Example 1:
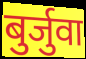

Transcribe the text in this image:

बुर्जुवा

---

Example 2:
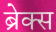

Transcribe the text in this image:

ब्रेक्स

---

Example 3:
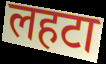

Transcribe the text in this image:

लहटा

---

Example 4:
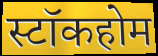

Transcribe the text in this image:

स्टॉकहोम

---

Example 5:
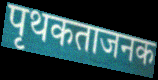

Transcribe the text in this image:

पृथकताजनक